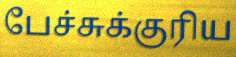
பேச்சுக்குரிய